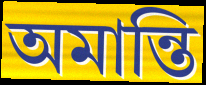
অমান্তি